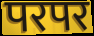
परपर